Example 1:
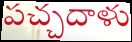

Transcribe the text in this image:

పచ్చదాళు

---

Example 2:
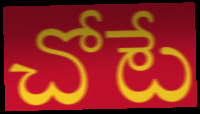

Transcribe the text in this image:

చోటే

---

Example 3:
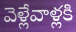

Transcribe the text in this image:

వెళ్లేవాళ్లకి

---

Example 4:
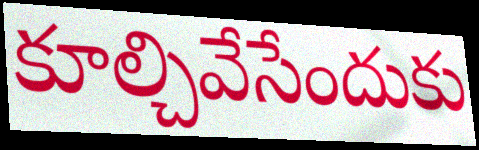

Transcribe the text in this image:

కూల్చివేసేందుకు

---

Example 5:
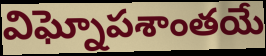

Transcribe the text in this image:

విఘ్నోపశాంతయే